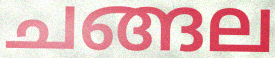
ചങ്ങല